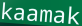
kaamak